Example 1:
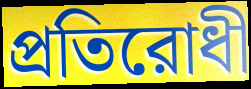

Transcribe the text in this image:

প্রতিরোধী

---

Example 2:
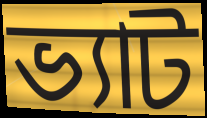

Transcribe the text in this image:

ভ্যাট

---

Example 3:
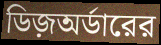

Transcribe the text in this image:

ডিজ়অর্ডারের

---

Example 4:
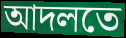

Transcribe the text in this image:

আদলতে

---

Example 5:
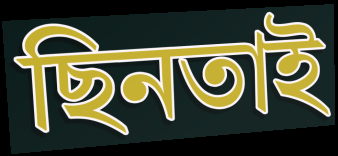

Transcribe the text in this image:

ছিনতাই